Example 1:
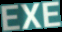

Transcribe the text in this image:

EXE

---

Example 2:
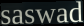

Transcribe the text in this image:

saswad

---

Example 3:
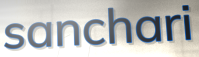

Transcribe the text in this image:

sanchari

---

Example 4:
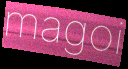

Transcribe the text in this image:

magoi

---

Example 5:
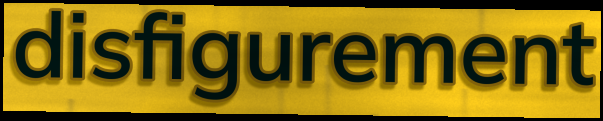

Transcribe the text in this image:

disfigurement